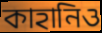
কাহানিও